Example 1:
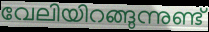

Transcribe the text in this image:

വേലിയിറങ്ങുന്നുണ്ട്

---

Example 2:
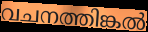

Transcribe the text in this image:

വചനത്തിങ്കൽ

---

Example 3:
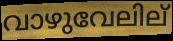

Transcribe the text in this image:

വാഴുവേലില്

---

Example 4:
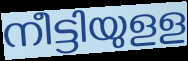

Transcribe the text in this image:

നീട്ടിയുളള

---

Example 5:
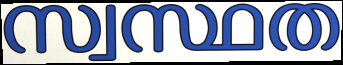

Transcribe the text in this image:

സ്വസ്ഥത